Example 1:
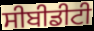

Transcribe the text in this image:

ਸੀਬੀਡੀਟੀ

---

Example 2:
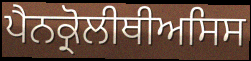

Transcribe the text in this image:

ਪੈਨਕ੍ਰੋਲੀਥੀਅਸਿਸ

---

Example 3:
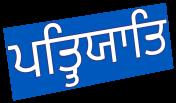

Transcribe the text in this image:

ਪਤ੍ਤਿਯਾਤਿ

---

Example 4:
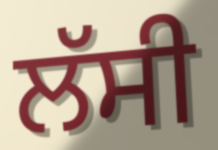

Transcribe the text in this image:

ਲੱਸੀ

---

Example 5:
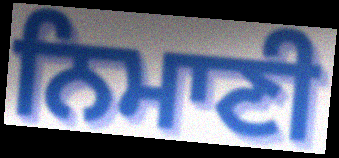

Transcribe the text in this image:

ਨਿਮਾਣੀ